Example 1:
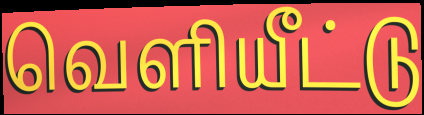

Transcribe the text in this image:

வெளியீட்டு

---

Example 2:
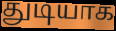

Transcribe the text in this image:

துடியாக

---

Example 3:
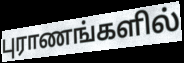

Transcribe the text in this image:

புராணங்களில்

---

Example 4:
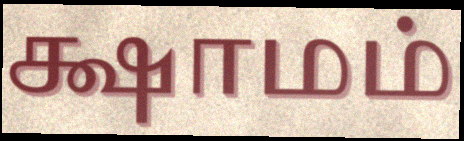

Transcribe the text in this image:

க்ஷாமம்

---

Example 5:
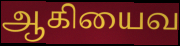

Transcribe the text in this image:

ஆகியைவ